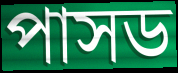
পাসড